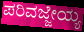
ಪರಿವಜ್ಜೇಯ್ಯ